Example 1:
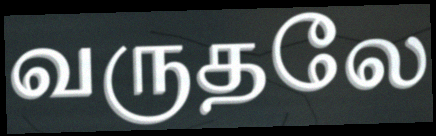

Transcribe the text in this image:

வருதலே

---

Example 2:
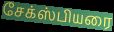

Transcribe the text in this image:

சேக்ஸ்பியரை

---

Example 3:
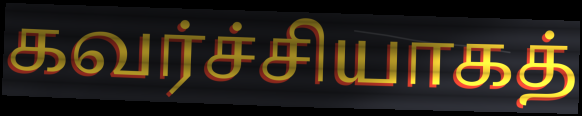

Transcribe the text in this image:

கவர்ச்சியாகத்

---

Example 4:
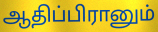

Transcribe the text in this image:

ஆதிப்பிரானும்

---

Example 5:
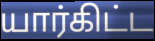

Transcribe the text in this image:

யார்கிட்ட